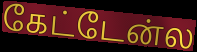
கேட்டேன்ல